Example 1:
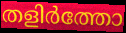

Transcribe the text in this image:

തളിർത്തോ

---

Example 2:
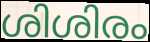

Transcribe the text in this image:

ശിശിരം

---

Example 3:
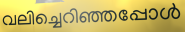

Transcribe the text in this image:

വലിച്ചെറിഞ്ഞപ്പോൾ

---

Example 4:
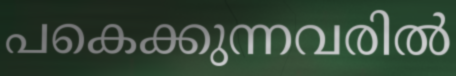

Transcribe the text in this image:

പകെക്കുന്നവരിൽ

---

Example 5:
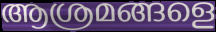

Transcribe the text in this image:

ആശ്രമങ്ങളെ